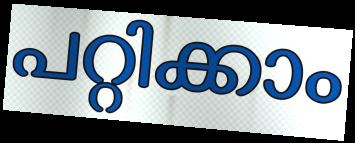
പറ്റിക്കാം